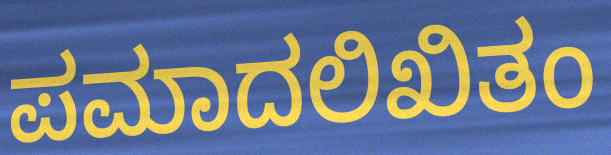
ಪಮಾದಲಿಖಿತಂ